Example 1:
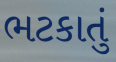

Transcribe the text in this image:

ભટકાતું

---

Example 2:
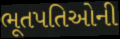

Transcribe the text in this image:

ભૂતપતિઓની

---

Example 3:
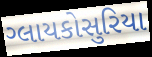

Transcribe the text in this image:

ગ્લાયકોસુરિયા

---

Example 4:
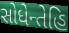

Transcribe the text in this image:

સોધેન્તેહિ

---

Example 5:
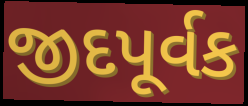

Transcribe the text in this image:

જીદપૂર્વક